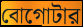
বোগোটার